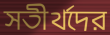
সতীর্থদের